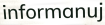
informanuj